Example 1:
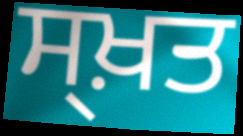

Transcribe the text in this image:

ਸ੍ਖ਼ਤ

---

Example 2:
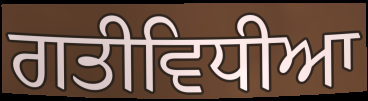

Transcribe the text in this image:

ਗਤੀਵਿਧੀਆ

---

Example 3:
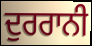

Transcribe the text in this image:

ਦੁਰਰਾਨੀ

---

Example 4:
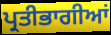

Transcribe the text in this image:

ਪ੍ਰਤੀਭਾਗੀਆਂ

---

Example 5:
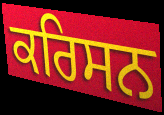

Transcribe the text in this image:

ਕਰਿਸਨ